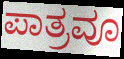
ಪಾತ್ರವೂ